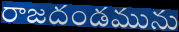
రాజదండమును